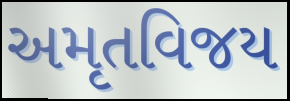
અમૃતવિજય